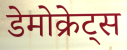
डेमोक्रेट्स